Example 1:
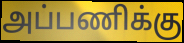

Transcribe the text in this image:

அப்பணிக்கு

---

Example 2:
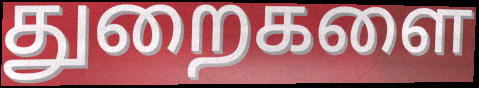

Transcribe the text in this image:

துறைகளை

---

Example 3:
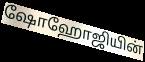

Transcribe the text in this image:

ஷோஹோஜியின்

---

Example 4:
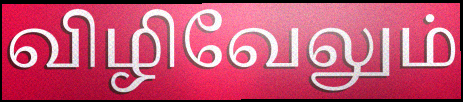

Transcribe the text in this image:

விழிவேலும்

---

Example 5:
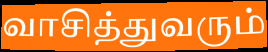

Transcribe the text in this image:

வாசித்துவரும்